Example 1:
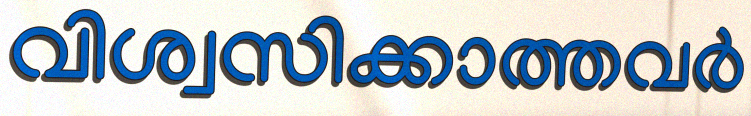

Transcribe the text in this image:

വിശ്വസിക്കാത്തവർ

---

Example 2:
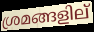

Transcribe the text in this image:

ശ്രമങ്ങളില്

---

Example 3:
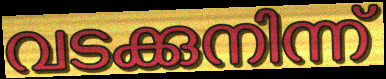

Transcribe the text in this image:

വടക്കുനിന്ന്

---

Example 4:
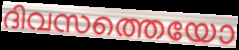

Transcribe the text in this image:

ദിവസത്തെയോ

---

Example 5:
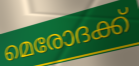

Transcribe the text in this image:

മെരോദക്ക്